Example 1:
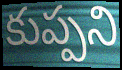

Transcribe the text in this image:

కుప్పని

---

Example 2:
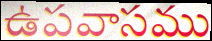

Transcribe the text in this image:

ఉపవాసము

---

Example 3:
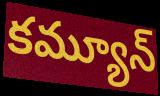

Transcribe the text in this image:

కమ్యూన్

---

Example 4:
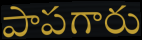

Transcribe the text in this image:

పాపగారు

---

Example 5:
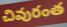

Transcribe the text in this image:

చివురంత